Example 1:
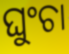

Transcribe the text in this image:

ଘୁଂଚା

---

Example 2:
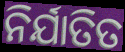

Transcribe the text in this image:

ନିର୍ଯାତିତ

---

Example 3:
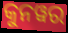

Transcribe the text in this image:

କୁନୱର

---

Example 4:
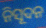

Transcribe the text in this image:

ନିସୂଦନ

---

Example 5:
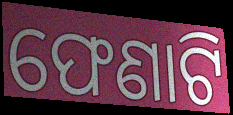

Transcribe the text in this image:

ଫେଣାଟି